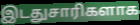
இடதுசாரிகளாக